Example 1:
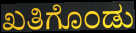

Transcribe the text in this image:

ಖತಿಗೊಂಡು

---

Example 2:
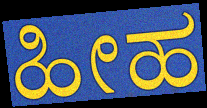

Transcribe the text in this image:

ಹೀಹ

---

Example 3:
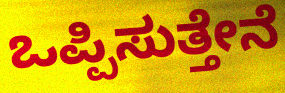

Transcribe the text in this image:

ಒಪ್ಪಿಸುತ್ತೇನೆ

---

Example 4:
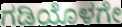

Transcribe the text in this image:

ಗಡಿಯೊಳಗೇ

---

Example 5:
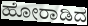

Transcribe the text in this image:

ಹೋರಾಡಿದ